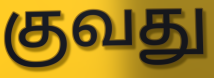
குவது